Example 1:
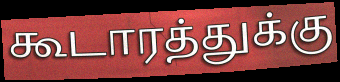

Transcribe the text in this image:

கூடாரத்துக்கு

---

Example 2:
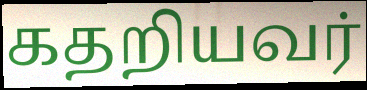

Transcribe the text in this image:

கதறியவர்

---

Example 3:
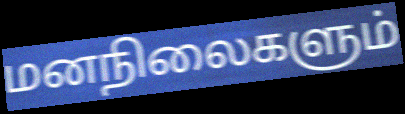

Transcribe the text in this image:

மனநிலைகளும்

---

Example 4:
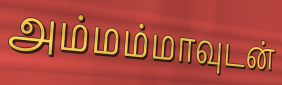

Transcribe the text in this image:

அம்மம்மாவுடன்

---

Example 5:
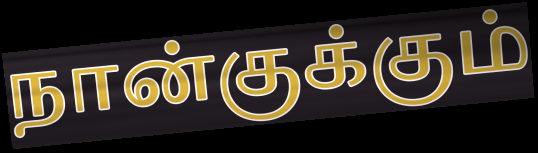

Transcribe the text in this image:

நான்குக்கும்